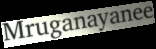
Mruganayanee